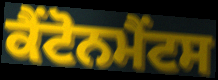
ਕੈਂਟੋਨਮੈਂਟਸ